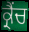
ਕ੍ਰੈਂਚ